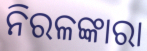
ନିରଳଙ୍କାରା